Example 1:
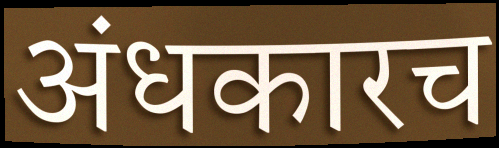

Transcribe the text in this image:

अंधकारच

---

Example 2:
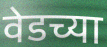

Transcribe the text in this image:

वेडच्या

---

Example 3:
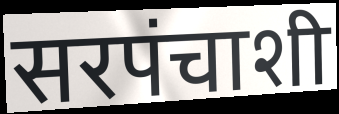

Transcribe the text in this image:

सरपंचाशी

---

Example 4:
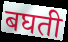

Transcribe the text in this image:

बघती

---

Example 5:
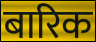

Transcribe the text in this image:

बारिक